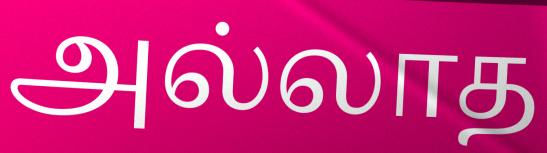
அல்லாத